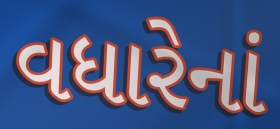
વધારેનાં